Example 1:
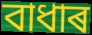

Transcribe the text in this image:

বাধাৰ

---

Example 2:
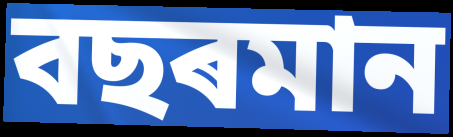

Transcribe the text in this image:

বছৰমান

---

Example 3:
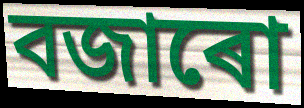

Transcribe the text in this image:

বজাৰো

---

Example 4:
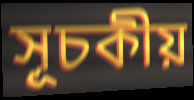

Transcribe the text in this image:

সূচকীয়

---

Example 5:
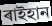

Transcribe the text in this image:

ৰাইহান